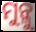
ମୁନ୍ଳୁ